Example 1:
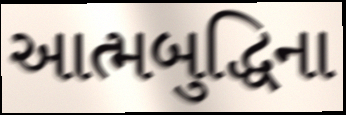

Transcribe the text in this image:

આત્મબુદ્ધિના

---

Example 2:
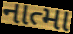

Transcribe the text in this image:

નાત્મા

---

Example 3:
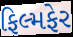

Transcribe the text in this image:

ફિલ્મફેર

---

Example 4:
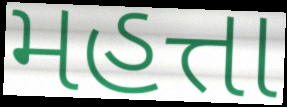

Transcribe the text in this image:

મહત્તા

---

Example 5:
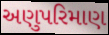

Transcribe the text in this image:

અણુપરિમાણ